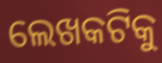
ଲେଖକଟିକୁ